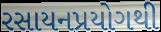
રસાયનપ્રયોગથી